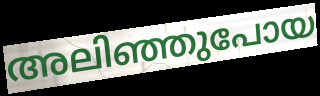
അലിഞ്ഞുപോയ